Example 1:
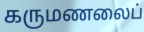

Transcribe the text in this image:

கருமணலைப்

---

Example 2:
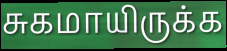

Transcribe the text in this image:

சுகமாயிருக்க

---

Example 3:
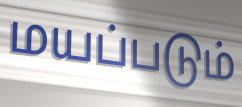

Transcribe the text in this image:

மயப்படும்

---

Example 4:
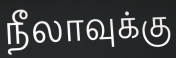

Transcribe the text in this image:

நீலாவுக்கு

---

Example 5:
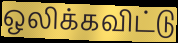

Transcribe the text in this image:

ஒலிக்கவிட்டு